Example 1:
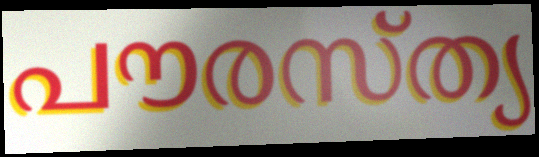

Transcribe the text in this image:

പൗരസ്ത്യ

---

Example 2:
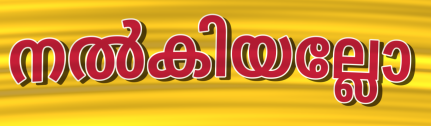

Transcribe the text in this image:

നൽകിയല്ലോ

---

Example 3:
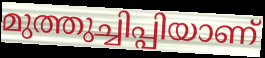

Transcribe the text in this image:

മുത്തുച്ചിപ്പിയാണ്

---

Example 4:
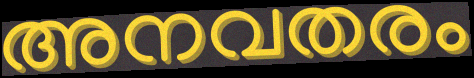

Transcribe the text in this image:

അനവതരം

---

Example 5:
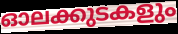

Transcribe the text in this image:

ഓലക്കുടകളും